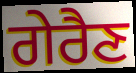
ਗੇਰੈਣ